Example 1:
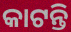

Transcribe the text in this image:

କାଟନ୍ତି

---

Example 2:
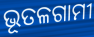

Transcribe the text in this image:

ଭୂତଳଗାମୀ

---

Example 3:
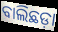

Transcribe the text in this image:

ବାଲିଛଡ଼ା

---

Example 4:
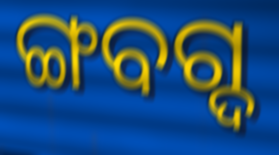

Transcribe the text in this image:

ଙ୍ଗବଗ୍ଦ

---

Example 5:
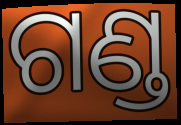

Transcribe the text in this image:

ଗଣ୍ଡ